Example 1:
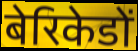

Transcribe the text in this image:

बेरिकेडों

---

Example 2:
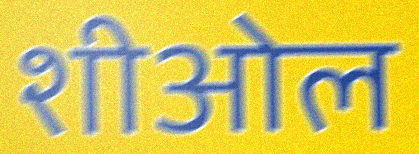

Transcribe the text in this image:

शीओल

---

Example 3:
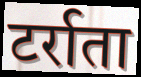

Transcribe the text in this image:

टर्राता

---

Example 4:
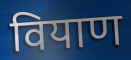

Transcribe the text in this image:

वियाण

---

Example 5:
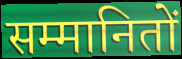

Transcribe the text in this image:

सम्मानितों